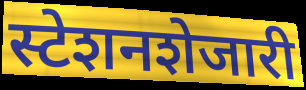
स्टेशनशेजारी